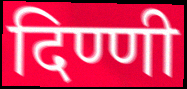
दिण्णी